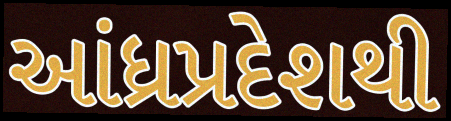
આંધ્રપ્રદેશથી